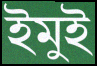
ইমুই